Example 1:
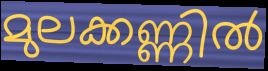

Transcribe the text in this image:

മുലക്കണ്ണിൽ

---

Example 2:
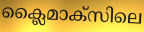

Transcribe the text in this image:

ക്ലൈമാക്സിലെ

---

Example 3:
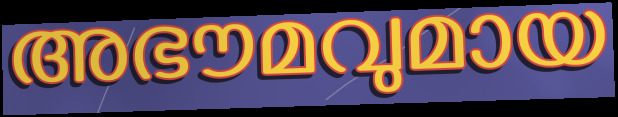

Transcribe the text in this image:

അഭൗമവുമായ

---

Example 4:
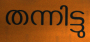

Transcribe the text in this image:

തന്നിട്ടു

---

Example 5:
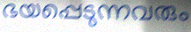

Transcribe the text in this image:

ഭയപ്പെടുന്നവരും